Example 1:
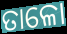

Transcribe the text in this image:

ତାଳୋ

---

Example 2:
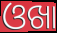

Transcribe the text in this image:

ଓଖା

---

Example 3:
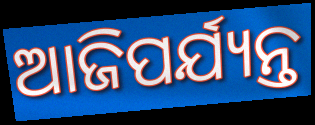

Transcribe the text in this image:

ଆଜିପର୍ଯ୍ୟନ୍ତ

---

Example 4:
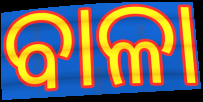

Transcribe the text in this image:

ବାଳା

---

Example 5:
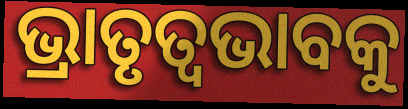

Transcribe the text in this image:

ଭ୍ରାତୃତ୍ୱଭାବକୁ